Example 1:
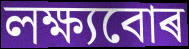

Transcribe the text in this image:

লক্ষ্যবোৰ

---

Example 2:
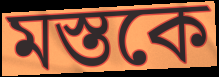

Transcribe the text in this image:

মস্তকে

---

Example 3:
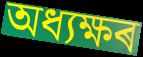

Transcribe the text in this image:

অধ্যক্ষৰ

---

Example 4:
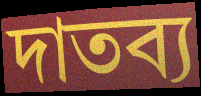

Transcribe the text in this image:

দাতব্য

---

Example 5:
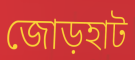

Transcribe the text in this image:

জোড়হাট